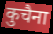
कुचैना